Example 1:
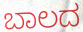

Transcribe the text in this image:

ಬಾಲದ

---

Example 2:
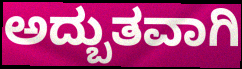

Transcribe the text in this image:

ಅದ್ಬುತವಾಗಿ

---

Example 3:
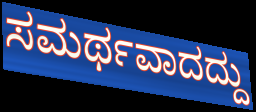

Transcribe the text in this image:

ಸಮರ್ಥವಾದದ್ದು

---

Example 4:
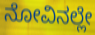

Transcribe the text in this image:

ನೋವಿನಲ್ಲೇ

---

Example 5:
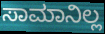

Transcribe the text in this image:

ಸಾಮಾನಿಲ್ಲ